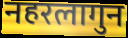
नहरलागुन